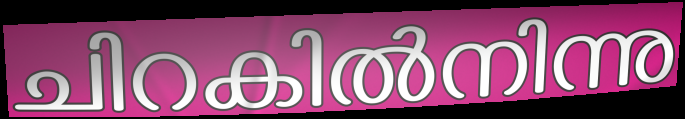
ചിറകിൽനിന്നു